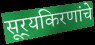
सूर्यकिरणांचे